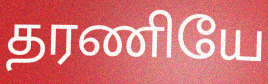
தரணியே